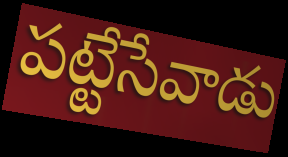
పట్టేసేవాడు